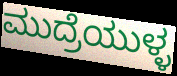
ಮುದ್ರೆಯುಳ್ಳ